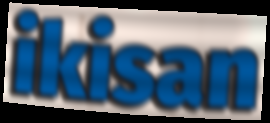
ikisan